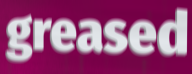
greased